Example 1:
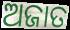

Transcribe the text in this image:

ଅଜାତ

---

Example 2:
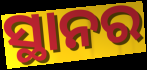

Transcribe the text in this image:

ସ୍ଥାନର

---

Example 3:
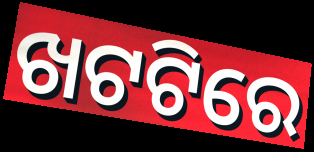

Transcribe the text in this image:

ଖଟଟିରେ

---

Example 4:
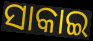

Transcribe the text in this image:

ସାକାଇ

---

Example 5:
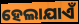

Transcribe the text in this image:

ହେଲାଯାଏଁ